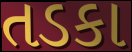
તડકા